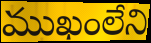
ముఖంలేని